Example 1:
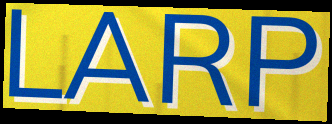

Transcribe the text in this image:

LARP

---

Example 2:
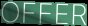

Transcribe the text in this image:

OFFER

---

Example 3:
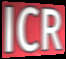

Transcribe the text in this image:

ICR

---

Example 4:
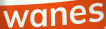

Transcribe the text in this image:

wanes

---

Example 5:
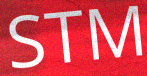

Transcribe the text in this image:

STM